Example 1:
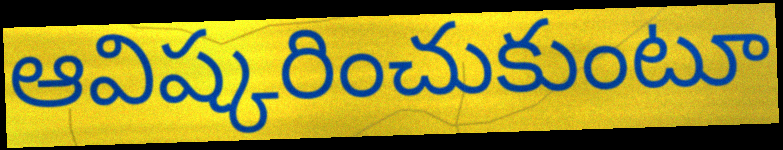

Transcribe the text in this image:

ఆవిష్కరించుకుంటూ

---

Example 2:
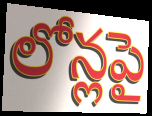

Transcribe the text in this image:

లోన్లపై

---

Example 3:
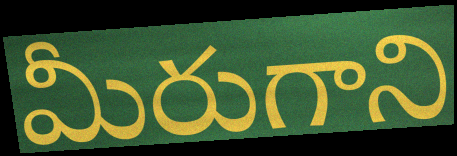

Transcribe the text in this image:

మీరుగాని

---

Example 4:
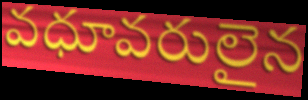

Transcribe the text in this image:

వధూవరులైన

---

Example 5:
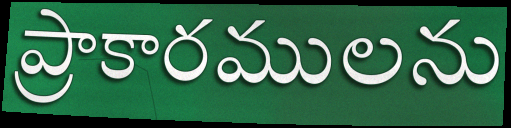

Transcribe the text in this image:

ప్రాకారములను